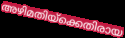
അഴിമതിയ്ക്കെതിരായ